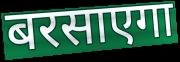
बरसाएगा